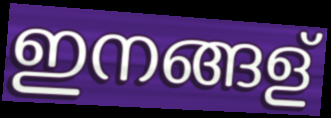
ഇനങ്ങള്